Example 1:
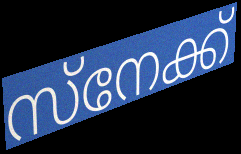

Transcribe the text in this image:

സ്നേക്ക്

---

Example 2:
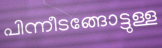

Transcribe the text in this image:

പിന്നീടങ്ങോട്ടുള്ള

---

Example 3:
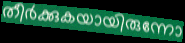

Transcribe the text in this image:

തീർക്കുകയായിരുന്നോ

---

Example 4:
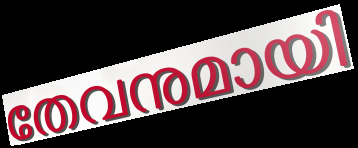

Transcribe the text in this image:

തേവനുമായി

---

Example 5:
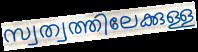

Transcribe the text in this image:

സ്വത്വത്തിലേക്കുള്ള